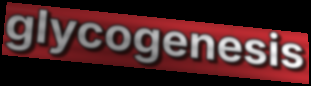
glycogenesis